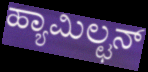
ಹ್ಯಾಮಿಲ್ಟನ್